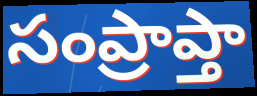
సంప్రాప్తా